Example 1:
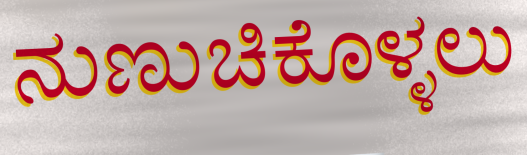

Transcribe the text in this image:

ನುಣುಚಿಕೊಳ್ಳಲು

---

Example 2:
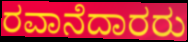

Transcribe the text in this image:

ರವಾನೆದಾರರು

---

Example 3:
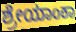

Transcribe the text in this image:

ಶ್ರೇಯಾಂಕಾ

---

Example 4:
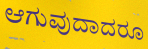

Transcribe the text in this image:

ಆಗುವುದಾದರೂ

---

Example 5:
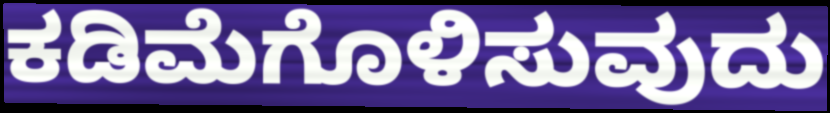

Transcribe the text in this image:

ಕಡಿಮೆಗೊಳಿಸುವುದು